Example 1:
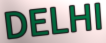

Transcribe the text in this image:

DELHI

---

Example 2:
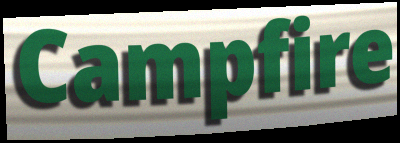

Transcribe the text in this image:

Campfire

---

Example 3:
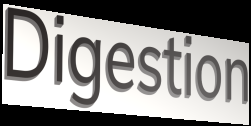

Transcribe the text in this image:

Digestion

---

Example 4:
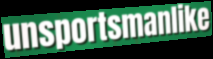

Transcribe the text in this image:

unsportsmanlike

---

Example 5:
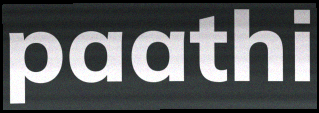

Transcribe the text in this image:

paathi